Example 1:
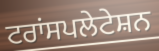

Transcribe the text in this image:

ਟਰਾਂਸਪਲੇਟੇਸ਼ਨ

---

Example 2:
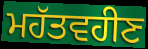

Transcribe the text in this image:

ਮਹੱਤਵਹੀਣ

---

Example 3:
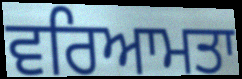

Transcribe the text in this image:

ਵਰਿਆਮਤਾ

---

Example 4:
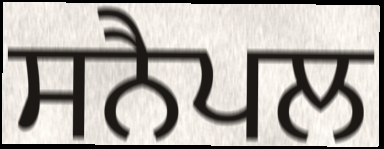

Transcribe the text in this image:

ਸਨੈਪਲ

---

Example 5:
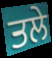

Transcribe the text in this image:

ਤਲੇ